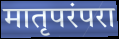
मातृपरंपरा